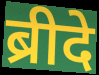
ब्रीदे